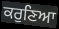
ਕਰੁਣਿਆ